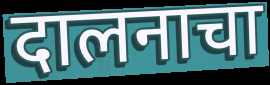
दालनाचा